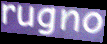
rugno